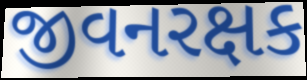
જીવનરક્ષક